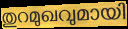
തുറമുഖവുമായി